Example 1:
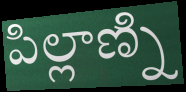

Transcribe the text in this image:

పిల్లాణ్ని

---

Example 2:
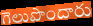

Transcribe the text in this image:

గెలుపొందారు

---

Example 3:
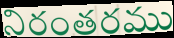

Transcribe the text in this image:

నిరంతరము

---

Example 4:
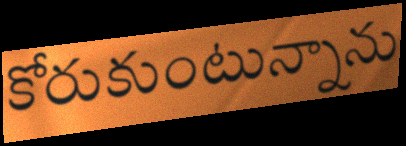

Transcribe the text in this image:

కోరుకుంటున్నాను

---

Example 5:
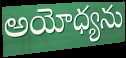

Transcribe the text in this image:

అయోధ్యను